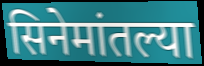
सिनेमांतल्या